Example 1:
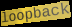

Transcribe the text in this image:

loopback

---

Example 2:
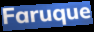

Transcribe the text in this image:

Faruque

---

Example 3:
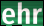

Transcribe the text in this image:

ehr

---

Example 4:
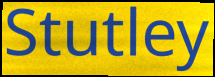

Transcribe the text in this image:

Stutley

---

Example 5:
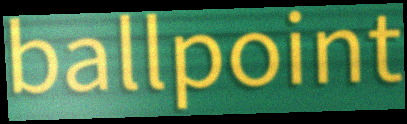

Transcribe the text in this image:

ballpoint